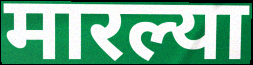
मारल्या